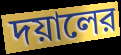
দয়ালের